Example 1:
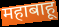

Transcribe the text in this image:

महाबाहू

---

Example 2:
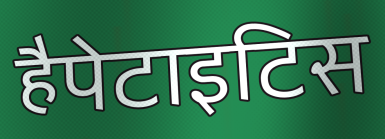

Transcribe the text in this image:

हैपेटाइटिस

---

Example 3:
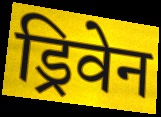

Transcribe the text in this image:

ड्रिवेन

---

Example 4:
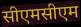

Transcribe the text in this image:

सीएमसीएम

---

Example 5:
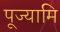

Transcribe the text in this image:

पूज्यामि